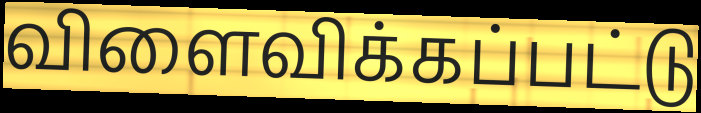
விளைவிக்கப்பட்டு